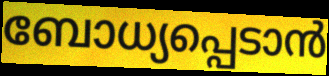
ബോധ്യപ്പെടാൻ